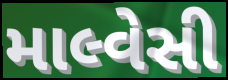
માલ્વેસી